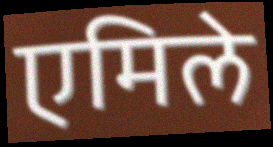
एमिले